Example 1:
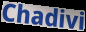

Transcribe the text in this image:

Chadivi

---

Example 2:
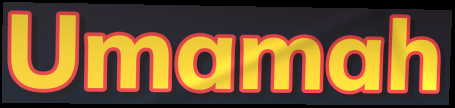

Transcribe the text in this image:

Umamah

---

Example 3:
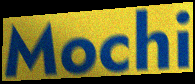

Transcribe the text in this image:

Mochi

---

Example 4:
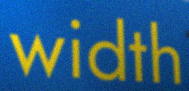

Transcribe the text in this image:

width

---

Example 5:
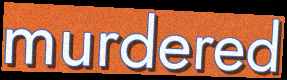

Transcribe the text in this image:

murdered